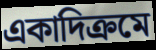
একাদিক্ৰমে